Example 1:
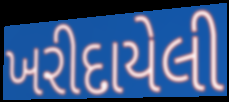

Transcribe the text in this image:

ખરીદાયેલી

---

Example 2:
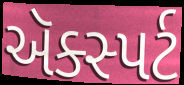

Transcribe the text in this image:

ઍક્સ્પર્ટ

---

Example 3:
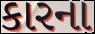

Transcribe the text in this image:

કારના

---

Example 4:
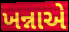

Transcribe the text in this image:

ખન્નાએ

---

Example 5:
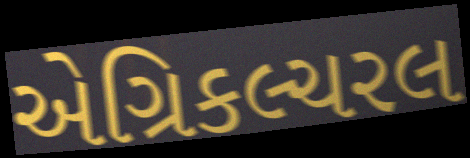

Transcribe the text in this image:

એગ્રિકલ્ચરલ